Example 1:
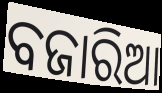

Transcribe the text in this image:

ବଜାରିଆ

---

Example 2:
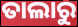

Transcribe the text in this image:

ତାଲାରୁ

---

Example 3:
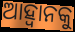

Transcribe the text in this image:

ଆହ୍ବାନକୁ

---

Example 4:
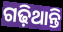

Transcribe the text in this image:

ଗଢ଼ିଥାନ୍ତି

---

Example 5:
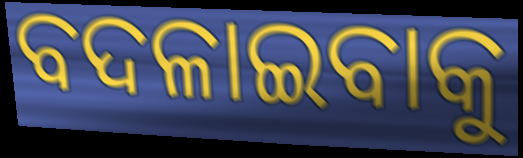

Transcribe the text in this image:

ବଦଳାଇବାକୁ